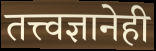
तत्त्वज्ञानेही